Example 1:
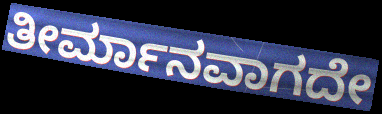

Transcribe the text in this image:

ತೀರ್ಮಾನವಾಗದೇ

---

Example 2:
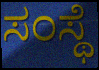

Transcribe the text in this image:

ಸಂಸ್ಥೆ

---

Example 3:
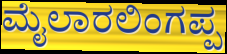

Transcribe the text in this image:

ಮೈಲಾರಲಿಂಗಪ್ಪ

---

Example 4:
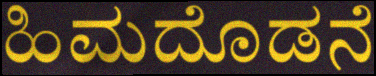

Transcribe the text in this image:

ಹಿಮದೊಡನೆ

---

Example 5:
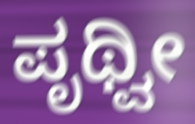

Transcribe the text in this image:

ಪೃಥ್ವೀ